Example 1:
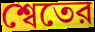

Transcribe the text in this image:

শ্বেতের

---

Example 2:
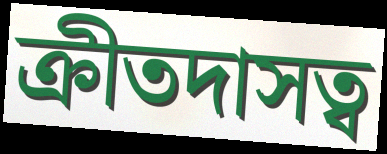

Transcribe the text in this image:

ক্রীতদাসত্ব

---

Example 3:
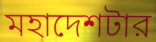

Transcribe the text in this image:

মহাদেশটার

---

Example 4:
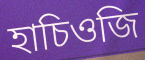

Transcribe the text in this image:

হাচিওজি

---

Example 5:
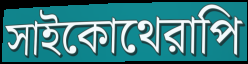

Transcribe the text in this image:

সাইকোথেরাপি